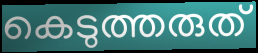
കെടുത്തരുത്